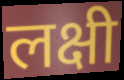
लक्षी